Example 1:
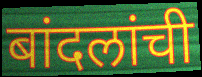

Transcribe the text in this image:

बांदलांची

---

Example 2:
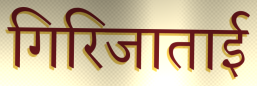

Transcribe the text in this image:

गिरिजाताई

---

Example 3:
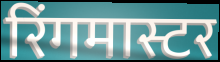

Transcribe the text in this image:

रिंगमास्टर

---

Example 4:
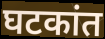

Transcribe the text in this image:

घटकांत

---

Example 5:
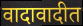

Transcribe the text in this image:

वादावादीत